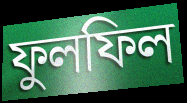
ফুলফিল